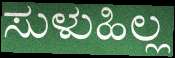
ಸುಳುಹಿಲ್ಲ